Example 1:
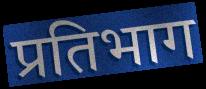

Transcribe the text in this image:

प्रतिभाग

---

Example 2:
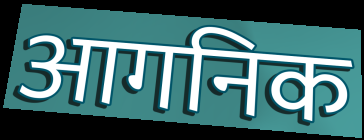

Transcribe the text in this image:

आगनिक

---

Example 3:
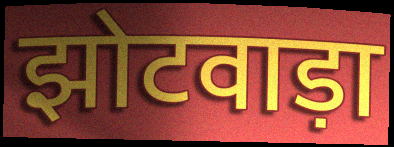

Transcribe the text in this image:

झोटवाड़ा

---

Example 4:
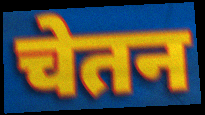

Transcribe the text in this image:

चेतन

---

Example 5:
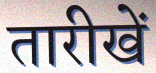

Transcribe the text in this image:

तारीखें